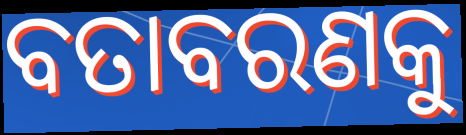
ବତାବରଣକୁ